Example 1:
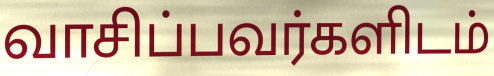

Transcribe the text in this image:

வாசிப்பவர்களிடம்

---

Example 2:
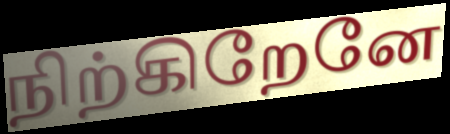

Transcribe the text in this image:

நிற்கிறேனே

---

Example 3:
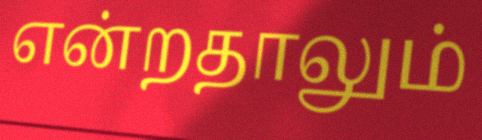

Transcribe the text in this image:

என்றதாலும்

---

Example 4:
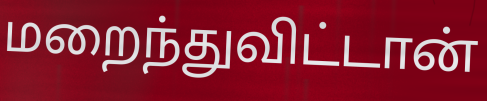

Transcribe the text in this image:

மறைந்துவிட்டான்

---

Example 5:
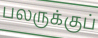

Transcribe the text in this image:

பலருக்குப்